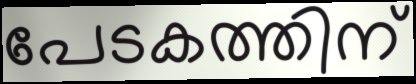
പേടകത്തിന്